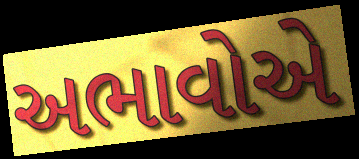
અભાવોએ